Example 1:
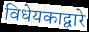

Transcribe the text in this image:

विधेयकाद्वारे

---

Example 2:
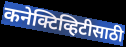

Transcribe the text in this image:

कनेक्टिव्हिटीसाठी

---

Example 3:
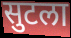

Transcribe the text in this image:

सुटला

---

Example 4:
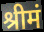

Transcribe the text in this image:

श्रीमं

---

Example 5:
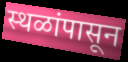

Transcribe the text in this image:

स्थळांपासून